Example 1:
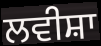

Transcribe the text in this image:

ਲਵੀਸ਼ਾ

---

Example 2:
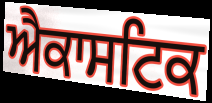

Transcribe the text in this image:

ਐਕਾਸਟਿਕ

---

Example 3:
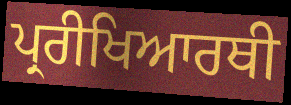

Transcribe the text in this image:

ਪ੍ਰਰੀਖਿਆਰਥੀ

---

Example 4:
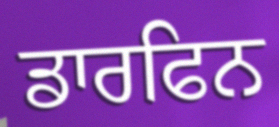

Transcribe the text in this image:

ਡਾਰਫਿਨ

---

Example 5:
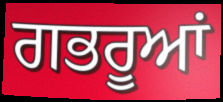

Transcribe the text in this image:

ਗਭਰੂਆਂ